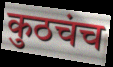
कुठचंच